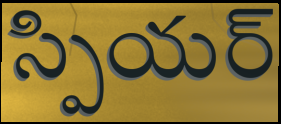
స్పియర్